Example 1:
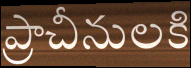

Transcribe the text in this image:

ప్రాచీనులకి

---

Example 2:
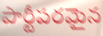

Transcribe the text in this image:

పార్టీపరమైన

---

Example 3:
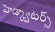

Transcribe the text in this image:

హెడ్క్వాటర్స్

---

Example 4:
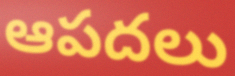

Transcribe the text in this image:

ఆపదలు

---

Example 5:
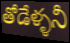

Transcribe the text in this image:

తోడేళ్ళనీ